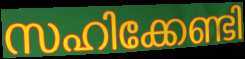
സഹിക്കേണ്ടി